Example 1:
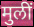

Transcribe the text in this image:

मुलीं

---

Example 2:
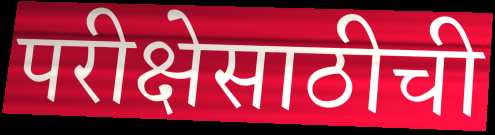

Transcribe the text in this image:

परीक्षेसाठीची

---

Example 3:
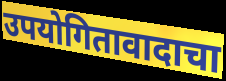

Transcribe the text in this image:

उपयोगितावादाचा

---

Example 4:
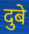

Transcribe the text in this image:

दुबे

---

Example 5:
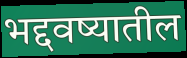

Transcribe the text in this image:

भद्दवष्यातील